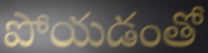
పోయడంతో